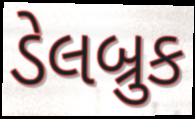
ડેલબ્રુક